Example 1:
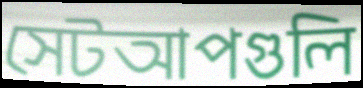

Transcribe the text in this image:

সেটআপগুলি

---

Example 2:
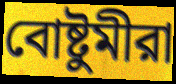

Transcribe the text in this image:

বোষ্টুমীরা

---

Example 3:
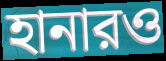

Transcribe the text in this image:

হানারও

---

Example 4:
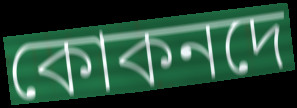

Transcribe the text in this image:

কোকনদে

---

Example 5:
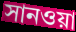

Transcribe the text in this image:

সানওয়া